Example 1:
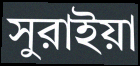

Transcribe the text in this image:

সুরাইয়া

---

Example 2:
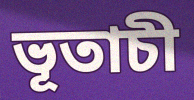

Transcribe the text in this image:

ভূতাচী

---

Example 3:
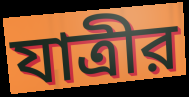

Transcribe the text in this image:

যাত্রীর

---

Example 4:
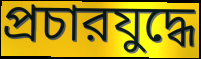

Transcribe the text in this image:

প্রচারযুদ্ধে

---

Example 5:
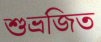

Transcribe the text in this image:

শুভ্রজিত